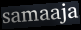
samaaja